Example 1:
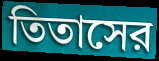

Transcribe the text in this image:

তিতাসের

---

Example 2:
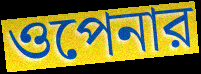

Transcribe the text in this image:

ওপেনার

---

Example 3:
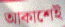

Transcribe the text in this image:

আকাশেই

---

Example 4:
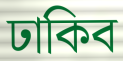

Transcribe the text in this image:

ঢাকিব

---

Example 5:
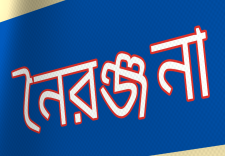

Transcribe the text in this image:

নৈরঞ্জনা